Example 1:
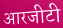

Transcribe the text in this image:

आरजीटी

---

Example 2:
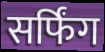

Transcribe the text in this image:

सर्फिंग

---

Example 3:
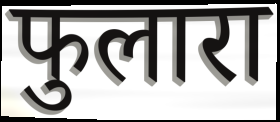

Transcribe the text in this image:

फुलारा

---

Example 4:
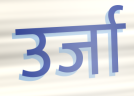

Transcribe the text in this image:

उर्जा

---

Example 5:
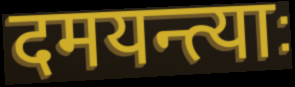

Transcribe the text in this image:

दमयन्त्याः